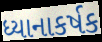
ધ્યાનાકર્ષક